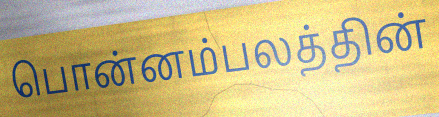
பொன்னம்பலத்தின்